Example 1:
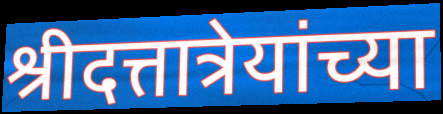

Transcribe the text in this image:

श्रीदत्तात्रेयांच्या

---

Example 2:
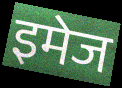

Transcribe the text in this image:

इमेज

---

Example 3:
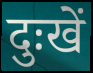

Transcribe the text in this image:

दुःखें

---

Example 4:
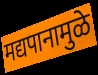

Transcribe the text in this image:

मद्यपानामुळे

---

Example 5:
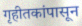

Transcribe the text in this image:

गृहीतकांपासून